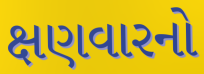
ક્ષણવારનો